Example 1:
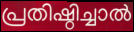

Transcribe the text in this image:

പ്രതിഷ്ഠിച്ചാൽ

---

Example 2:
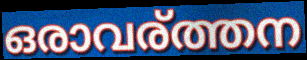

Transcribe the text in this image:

ഒരാവര്ത്തന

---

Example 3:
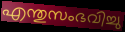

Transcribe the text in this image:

എന്തുസംഭവിച്ചു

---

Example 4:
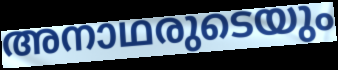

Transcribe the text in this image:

അനാഥരുടെയും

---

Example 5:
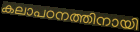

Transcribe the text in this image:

കലാപഠനത്തിനായി